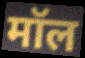
मॉल